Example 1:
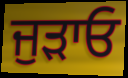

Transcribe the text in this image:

ਜੁੜਾਓ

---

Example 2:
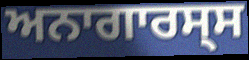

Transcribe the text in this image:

ਅਨਾਗਾਰਸ੍ਸ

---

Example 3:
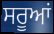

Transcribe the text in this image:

ਸਰੂਆਂ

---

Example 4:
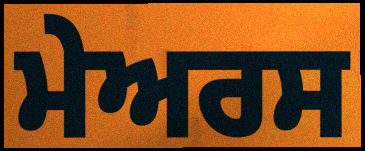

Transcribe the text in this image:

ਮੇਅਰਸ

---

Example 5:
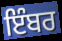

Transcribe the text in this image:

ਇੰਬਰ